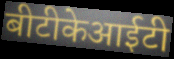
बीटीकेआईटी